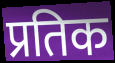
प्रतिक